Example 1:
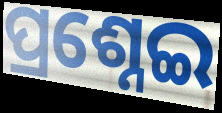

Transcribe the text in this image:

ପ୍ରଶ୍ନେଇ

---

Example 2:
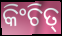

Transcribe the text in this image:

କିଂଚିତ୍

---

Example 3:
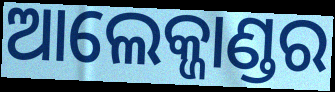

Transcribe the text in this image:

ଆଲେକ୍ଜାଣ୍ଡର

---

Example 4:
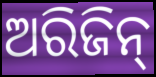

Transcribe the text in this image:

ଅରିଜିନ୍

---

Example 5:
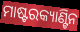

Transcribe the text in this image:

ମାଷ୍ଟରକ୍ୟାଣ୍ଟିନ